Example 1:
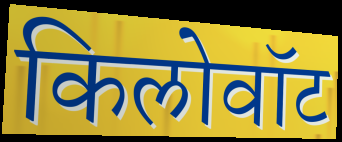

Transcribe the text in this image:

किलोवॉट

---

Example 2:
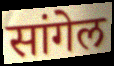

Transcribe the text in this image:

सांगेल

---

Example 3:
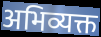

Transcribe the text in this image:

अभिव्यक्त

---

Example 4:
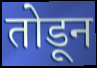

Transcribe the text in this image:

तोडून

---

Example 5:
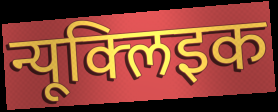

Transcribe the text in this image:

न्यूक्‍लिइक